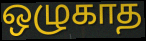
ஒழுகாத